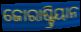
ଜୋରାଷ୍ଟ୍ରିୟାନ